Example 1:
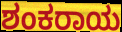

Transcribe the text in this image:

ಶಂಕರಾಯ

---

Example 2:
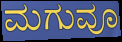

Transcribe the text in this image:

ಮಗುವೂ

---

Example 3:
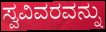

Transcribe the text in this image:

ಸ್ವವಿವರವನ್ನು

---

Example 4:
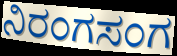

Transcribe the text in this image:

ನಿರಂಗಸಂಗ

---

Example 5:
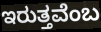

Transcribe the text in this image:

ಇರುತ್ತವೆಂಬ